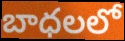
బాధలలో